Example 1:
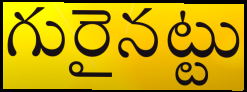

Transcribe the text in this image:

గురైనట్టు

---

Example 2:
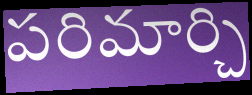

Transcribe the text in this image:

పరిమార్చి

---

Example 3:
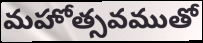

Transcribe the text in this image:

మహోత్సవముతో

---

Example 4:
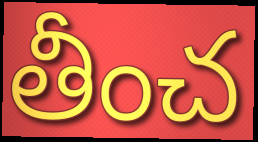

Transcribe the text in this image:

తీంచ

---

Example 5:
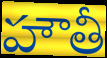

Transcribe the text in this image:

హౌతీ